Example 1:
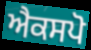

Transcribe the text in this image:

ਐਕਸਪੋ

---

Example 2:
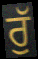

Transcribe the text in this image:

ਰੁੱ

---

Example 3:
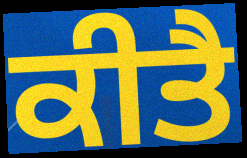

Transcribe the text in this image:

ਕੀਤੈ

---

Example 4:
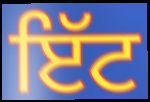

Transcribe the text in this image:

ਇੱਟ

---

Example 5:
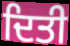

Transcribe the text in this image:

ਦਿਤੀ